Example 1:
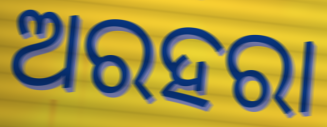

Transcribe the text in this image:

ଅରହରା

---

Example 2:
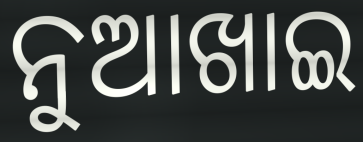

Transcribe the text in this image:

ନୁଆଖାଇ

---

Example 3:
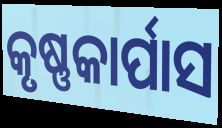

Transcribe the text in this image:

କୃଷ୍ଣକାର୍ପାସ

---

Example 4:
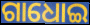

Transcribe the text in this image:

ଗାଧୋଇ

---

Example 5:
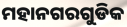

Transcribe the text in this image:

ମହାନଗରଗୁଡିକ